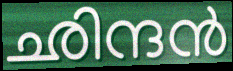
ഛിന്ദൻ